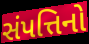
સંપત્તિનો